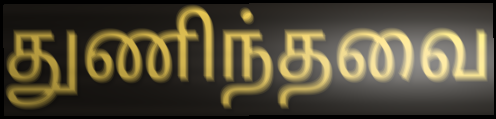
துணிந்தவை